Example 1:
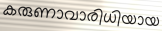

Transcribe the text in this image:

കരുണാവാരിധിയായ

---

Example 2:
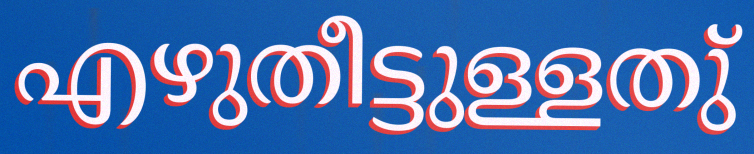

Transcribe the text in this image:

എഴുതീട്ടുള്ളതു്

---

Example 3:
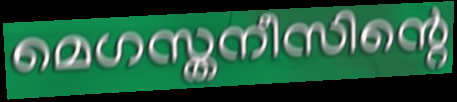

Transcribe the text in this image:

മെഗസ്തനീസിന്റെ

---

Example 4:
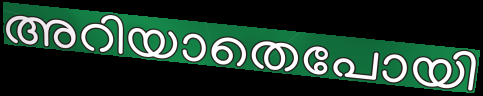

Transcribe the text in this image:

അറിയാതെപോയി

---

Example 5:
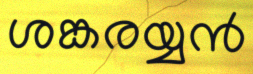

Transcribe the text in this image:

ശങ്കരയ്യൻ